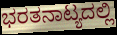
ಭರತನಾಟ್ಯದಲ್ಲಿ